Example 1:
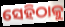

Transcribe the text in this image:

ସେହିଠାକୁ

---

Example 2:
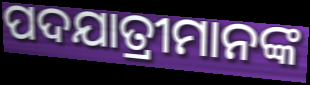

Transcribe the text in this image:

ପଦଯାତ୍ରୀମାନଙ୍କ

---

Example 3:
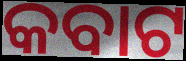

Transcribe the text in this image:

କବାଟ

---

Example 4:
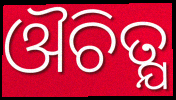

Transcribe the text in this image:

ଔଚିତ୍ଯ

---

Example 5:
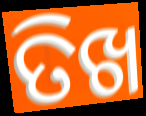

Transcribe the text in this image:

ତିଖ